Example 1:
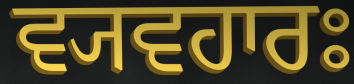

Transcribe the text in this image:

ਵ੍ਯਵਹਾਰਃ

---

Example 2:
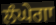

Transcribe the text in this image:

ਲੰਘੇਗਾ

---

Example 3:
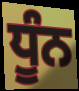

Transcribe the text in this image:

ਧੂੰਨ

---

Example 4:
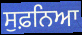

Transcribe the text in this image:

ਸੁਫ਼ਨਿਆ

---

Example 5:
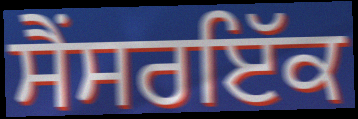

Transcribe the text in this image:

ਸੈਂਸਰਇੱਕ